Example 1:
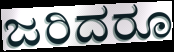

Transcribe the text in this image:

ಜರಿದರೂ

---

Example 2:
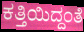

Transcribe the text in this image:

ಕತ್ತಿಯಿದ್ದಂತೆ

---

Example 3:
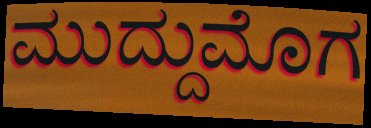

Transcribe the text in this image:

ಮುದ್ದುಮೊಗ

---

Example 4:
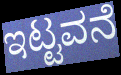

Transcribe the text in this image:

ಇಟ್ಟವನೆ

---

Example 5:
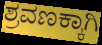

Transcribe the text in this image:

ಶ್ರವಣಕ್ಕಾಗಿ